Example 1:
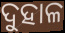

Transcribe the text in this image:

ଦୁହାଳ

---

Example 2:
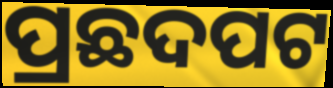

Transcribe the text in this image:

ପ୍ରଛଦପଟ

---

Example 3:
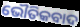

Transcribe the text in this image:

ଭୌତିକବାଦ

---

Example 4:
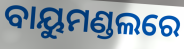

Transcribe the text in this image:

ବାୟୁମଣ୍ଡଲରେ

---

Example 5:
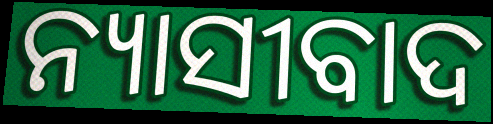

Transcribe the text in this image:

ନ୍ୟାସୀବାଦ